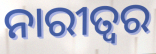
ନାରୀତ୍ୱର